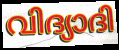
വിദ്യാദി